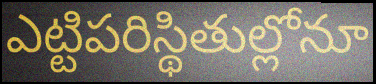
ఎట్టిపరిస్థితుల్లోనూ